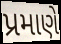
પ્રમાણે